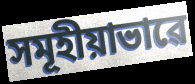
সমূহীয়াভাৱে